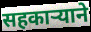
सहकाऱ्याने